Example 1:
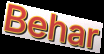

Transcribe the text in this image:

Behar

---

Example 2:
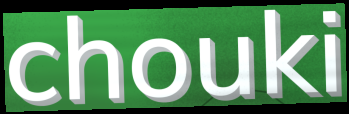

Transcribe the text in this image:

chouki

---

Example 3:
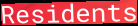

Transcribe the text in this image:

Residents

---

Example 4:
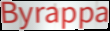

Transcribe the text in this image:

Byrappa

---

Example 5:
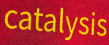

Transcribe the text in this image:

catalysis